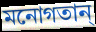
মনোগতান্